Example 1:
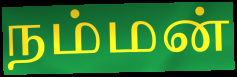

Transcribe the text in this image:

நம்மன்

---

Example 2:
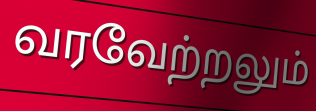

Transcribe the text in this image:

வரவேற்றலும்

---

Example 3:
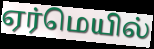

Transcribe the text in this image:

ஏர்மெயில்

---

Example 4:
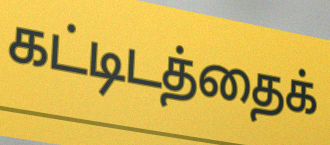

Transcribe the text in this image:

கட்டிடத்தைக்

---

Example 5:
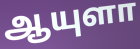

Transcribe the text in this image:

ஆயுளா